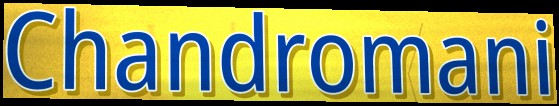
Chandromani